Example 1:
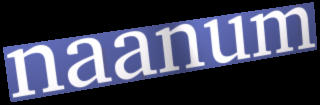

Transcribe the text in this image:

naanum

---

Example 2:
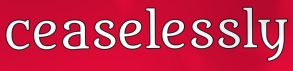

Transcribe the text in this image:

ceaselessly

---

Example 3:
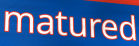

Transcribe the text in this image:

matured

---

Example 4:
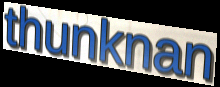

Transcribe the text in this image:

thunknan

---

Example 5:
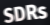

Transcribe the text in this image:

SDRs